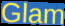
Glam